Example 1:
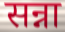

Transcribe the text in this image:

सन्ना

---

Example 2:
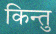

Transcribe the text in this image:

किन्‍तु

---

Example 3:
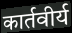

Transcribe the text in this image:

कार्तवीर्य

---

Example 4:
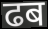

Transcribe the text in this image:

ढब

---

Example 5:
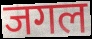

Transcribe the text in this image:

जगल